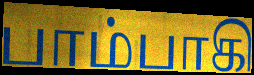
பாம்பாகி